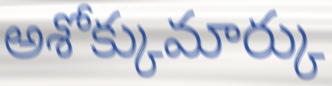
అశోక్కుమార్కు